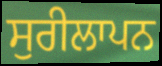
ਸੁਰੀਲਾਪਨ